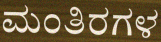
ಮಂತಿರಗಳ